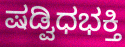
ಷಡ್ವಿಧಭಕ್ತಿ